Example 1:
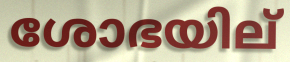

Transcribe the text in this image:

ശോഭയില്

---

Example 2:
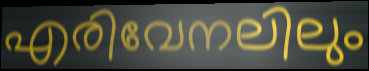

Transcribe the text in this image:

എരിവേനലിലും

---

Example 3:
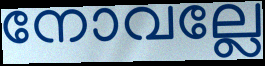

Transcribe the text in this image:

നോവല്ലേ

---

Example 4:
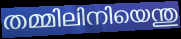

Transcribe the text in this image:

തമ്മിലിനിയെന്തു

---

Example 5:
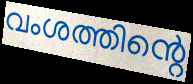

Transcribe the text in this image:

വംശത്തിന്റെ